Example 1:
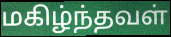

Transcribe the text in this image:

மகிழ்ந்தவள்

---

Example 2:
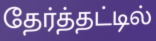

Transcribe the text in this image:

தேர்த்தட்டில்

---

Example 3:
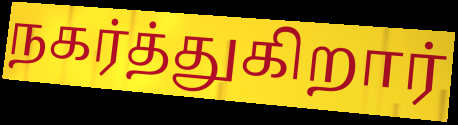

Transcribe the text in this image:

நகர்த்துகிறார்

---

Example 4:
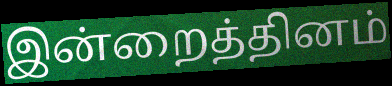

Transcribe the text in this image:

இன்றைத்தினம்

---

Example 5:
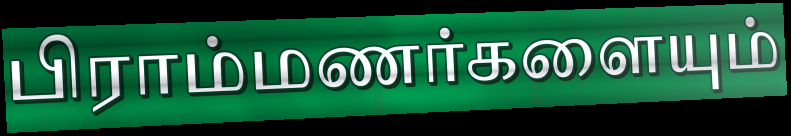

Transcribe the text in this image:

பிராம்மணர்களையும்